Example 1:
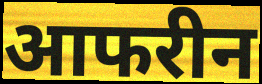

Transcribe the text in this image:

आफरीन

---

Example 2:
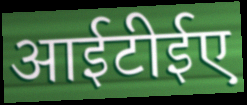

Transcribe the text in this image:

आईटीईए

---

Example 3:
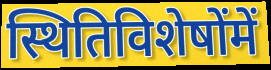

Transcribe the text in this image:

स्थितिविशेषोंमें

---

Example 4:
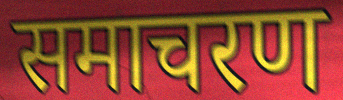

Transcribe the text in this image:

समाचरण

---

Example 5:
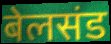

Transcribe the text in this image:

बेलसंड